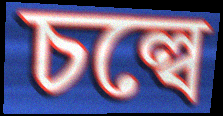
চল্বে